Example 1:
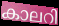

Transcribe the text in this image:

കാലറി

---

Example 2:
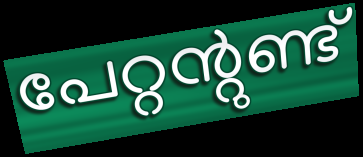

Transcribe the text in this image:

പേറ്റന്റുണ്ട്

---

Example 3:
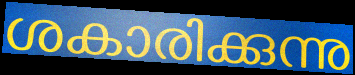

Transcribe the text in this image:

ശകാരിക്കുന്നു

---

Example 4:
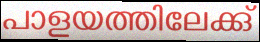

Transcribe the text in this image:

പാളയത്തിലേക്കു്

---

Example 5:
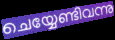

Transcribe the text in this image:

ചെയ്യേണ്ടിവന്നു